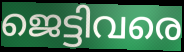
ജെട്ടിവരെ